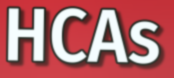
HCAs